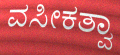
ವಸೀಕತ್ವಾ